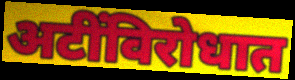
अटींविरोधात